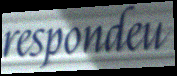
respondeu